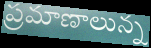
ప్రమాణాలున్న